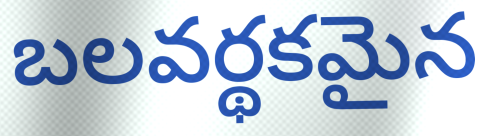
బలవర్థకమైన